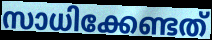
സാധിക്കേണ്ടത്